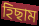
হিছাম